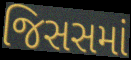
જિસસમાં